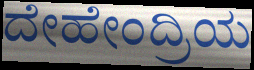
ದೇಹೇಂದ್ರಿಯ